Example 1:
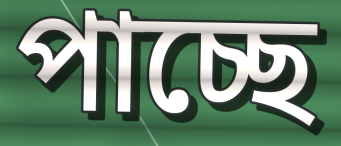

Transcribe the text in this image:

পাচ্ছে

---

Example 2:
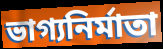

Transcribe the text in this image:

ভাগ্যনির্মাতা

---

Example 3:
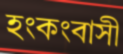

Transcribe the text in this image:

হংকংবাসী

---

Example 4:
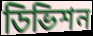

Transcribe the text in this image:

ডিভিশন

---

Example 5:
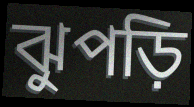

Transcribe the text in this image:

ঝুপড়ি